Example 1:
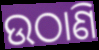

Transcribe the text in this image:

ଉଠାଣି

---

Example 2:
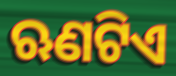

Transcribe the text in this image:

ଋଣଟିଏ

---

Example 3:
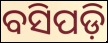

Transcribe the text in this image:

ବସିପଡ଼ି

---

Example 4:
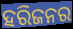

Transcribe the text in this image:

ହରିଜନର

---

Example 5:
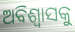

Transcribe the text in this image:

ଅବିଶ୍ୱାସକୁ